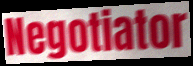
Negotiator